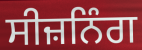
ਸੀਜ਼ਨਿੰਗ